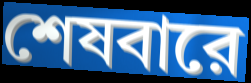
শেষবারে